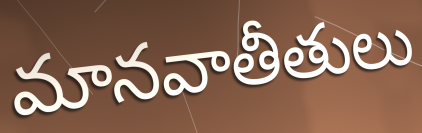
మానవాతీతులు